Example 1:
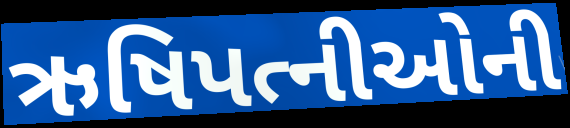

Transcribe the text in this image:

ઋષિપત્નીઓની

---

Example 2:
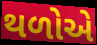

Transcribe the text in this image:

થળોએ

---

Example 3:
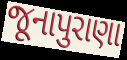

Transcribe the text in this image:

જૂનાપુરાણા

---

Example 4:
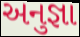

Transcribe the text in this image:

અનુજ્ઞા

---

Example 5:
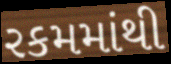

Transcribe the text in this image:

રકમમાંથી